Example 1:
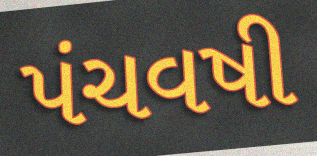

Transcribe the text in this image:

પંચવષી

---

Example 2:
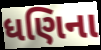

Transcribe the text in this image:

ધણિના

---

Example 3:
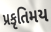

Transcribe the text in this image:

પ્રકૃતિમય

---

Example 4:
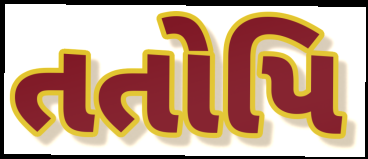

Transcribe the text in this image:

તતોપિ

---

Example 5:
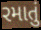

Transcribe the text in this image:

રમાતું